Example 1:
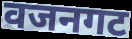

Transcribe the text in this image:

वजनगट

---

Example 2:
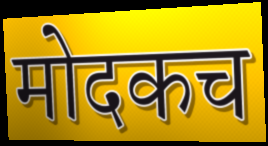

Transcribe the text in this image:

मोदकच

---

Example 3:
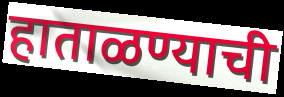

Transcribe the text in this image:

हाताळण्याची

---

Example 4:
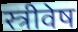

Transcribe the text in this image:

स्त्रीवेष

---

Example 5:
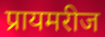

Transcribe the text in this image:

प्रायमरीज